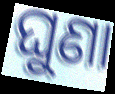
ଘୁଣା